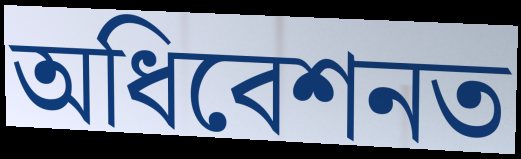
অধিবেশনত